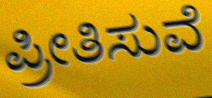
ಪ್ರೀತಿಸುವೆ